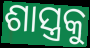
ଶାସ୍ତ୍ରକୁ